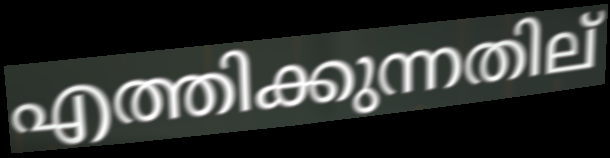
എത്തിക്കുന്നതില്